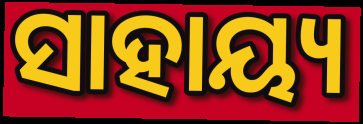
ସାହାୟ୍ୟ